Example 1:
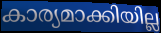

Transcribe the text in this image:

കാര്യമാക്കിയില്ല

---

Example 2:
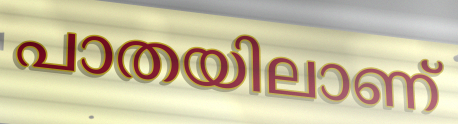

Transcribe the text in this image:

പാതയിലാണ്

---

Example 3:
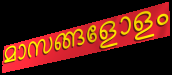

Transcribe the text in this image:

മാസങ്ങളോളം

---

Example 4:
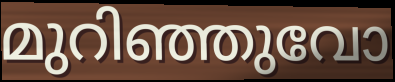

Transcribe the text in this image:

മുറിഞ്ഞുവോ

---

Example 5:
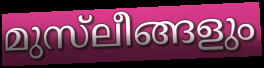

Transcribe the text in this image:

മുസ്‌ലീങ്ങളും